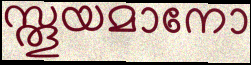
സ്തൂയമാനോ